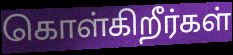
கொள்கிறீர்கள்